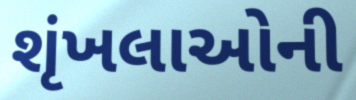
શૃંખલાઓની